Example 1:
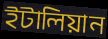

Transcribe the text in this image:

ইটালিয়ান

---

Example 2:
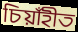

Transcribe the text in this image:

চিয়াঁহীত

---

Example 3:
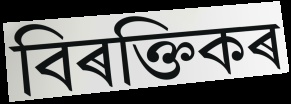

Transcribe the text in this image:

বিৰক্তিকৰ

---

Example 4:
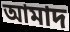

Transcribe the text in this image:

আমাদ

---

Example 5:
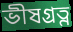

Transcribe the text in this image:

ভীষগ্ৰত্ন